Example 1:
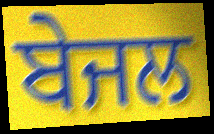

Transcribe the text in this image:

ਬੇਜਲ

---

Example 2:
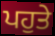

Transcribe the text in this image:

ਪਹੁਤੇ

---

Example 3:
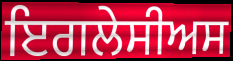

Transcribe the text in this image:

ਇਗਲੇਸੀਅਸ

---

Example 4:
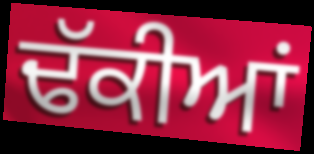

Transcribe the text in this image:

ਢੱਕੀਆਂ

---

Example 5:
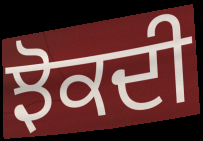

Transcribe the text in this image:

ਝੋਕਦੀ